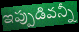
ఇప్పుడివన్నీ